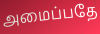
அமைப்பதே